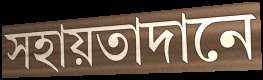
সহায়তাদানে